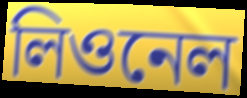
লিওনেল